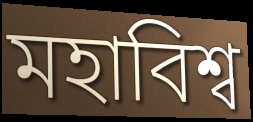
মহাবিশ্ব